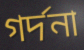
গর্দনা